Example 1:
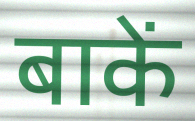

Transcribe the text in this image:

बाकें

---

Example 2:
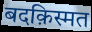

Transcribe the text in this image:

बदक़िस्मत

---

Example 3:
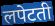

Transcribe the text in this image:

लपेटती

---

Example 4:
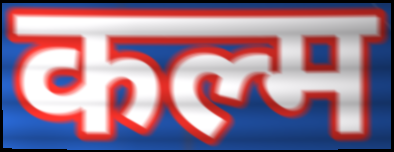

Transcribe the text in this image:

कल्म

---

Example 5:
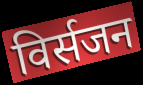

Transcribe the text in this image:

विर्सजन